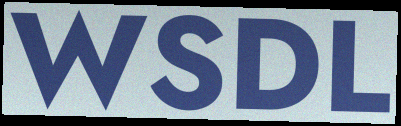
WSDL